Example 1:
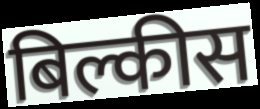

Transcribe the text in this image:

बिल्कीस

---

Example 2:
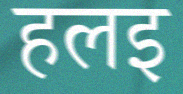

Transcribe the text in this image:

हलइ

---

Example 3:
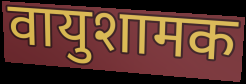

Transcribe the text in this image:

वायुशामक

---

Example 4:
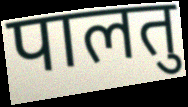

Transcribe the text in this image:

पालतु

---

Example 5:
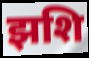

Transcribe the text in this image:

झशि